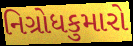
નિગ્રોધકુમારો